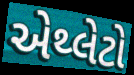
એથ્લેટો